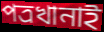
পত্রখানাই